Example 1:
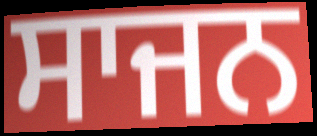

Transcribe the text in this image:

ਸਾਜਨ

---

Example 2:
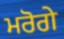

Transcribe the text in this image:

ਮਰੋਗੇ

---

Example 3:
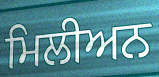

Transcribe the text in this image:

ਮਿਲੀਅਨ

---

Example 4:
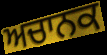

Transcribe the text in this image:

ਅਚਾਨਕ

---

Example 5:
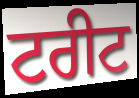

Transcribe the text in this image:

ਟਰੀਟ